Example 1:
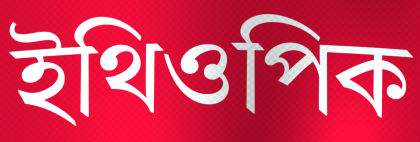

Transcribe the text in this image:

ইথিওপিক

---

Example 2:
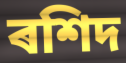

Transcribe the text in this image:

ৰশিদ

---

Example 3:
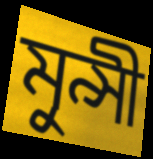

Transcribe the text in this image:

মুন্সী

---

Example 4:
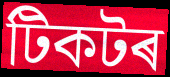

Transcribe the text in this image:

টিকটৰ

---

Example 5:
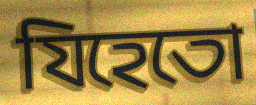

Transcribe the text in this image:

যিহেতো